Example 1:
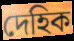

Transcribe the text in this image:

দেহিক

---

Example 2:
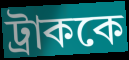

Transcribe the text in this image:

ট্রাককে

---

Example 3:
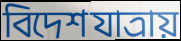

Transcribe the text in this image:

বিদেশযাত্রায়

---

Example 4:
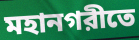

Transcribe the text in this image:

মহানগরীতে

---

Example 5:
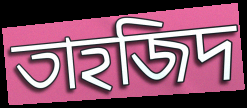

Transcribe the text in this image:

তাহজিদ